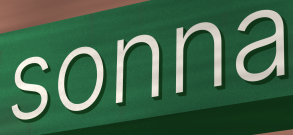
sonna